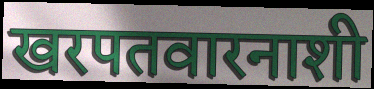
खरपतवारनाशी